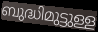
ബുദ്ധിമുട്ടുള്ള